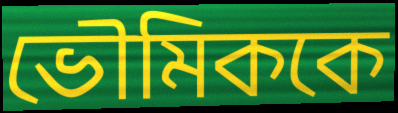
ভৌমিককে